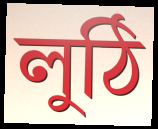
লুঠি